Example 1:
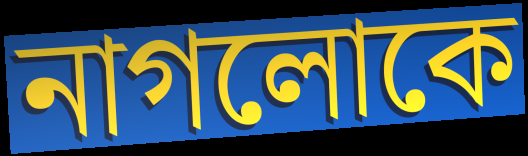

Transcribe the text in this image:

নাগলোকে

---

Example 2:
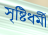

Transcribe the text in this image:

সৃষ্টিধর্মী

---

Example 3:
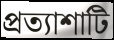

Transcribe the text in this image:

প্রত্যাশাটি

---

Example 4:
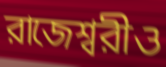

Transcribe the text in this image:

রাজেশ্বরীও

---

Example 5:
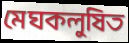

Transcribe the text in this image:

মেঘকলুষিত